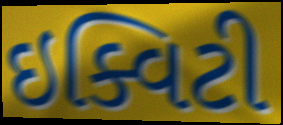
ઇક્વિટી